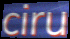
ciru